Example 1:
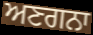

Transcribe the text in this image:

ਅਣਗਨਾ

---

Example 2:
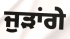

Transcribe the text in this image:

ਜੁੜਾਂਗੇ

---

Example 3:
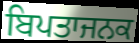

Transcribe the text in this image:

ਬਿਪਤਾਜਨਕ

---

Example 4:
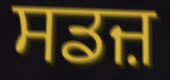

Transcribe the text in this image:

ਸਡਜ਼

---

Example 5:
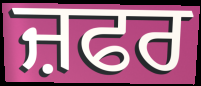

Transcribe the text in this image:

ਜ਼ਫਰ